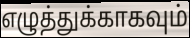
எழுத்துக்காகவும்